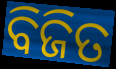
ବିଜିତ